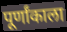
पूर्णांकाला